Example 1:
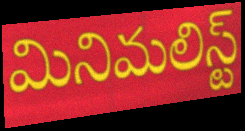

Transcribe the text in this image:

మినిమలిస్ట్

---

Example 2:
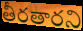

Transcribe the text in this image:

తీరతారని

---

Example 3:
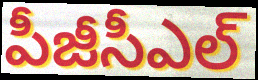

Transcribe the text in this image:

పీజీసీఎల్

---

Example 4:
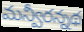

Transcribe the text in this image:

మన్వీరన్నథ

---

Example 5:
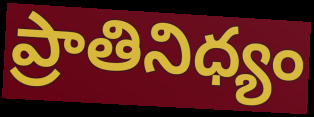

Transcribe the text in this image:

ప్రాతినిధ్యం